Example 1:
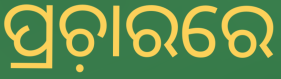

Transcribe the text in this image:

ପ୍ରଚ଼ାରରେ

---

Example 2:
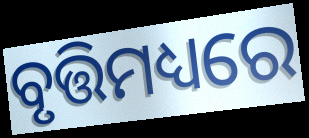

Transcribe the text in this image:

ବୃତ୍ତିମଧ୍ୟରେ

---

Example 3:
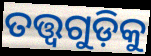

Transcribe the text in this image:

ତତ୍ତ୍ୱଗୁଡ଼ିକୁ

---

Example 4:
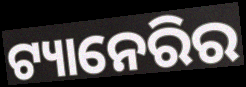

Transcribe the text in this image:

ଟ୍ୟାନେରିର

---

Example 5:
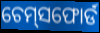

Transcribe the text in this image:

ଚେମ୍‌ସଫୋର୍ଡ